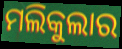
ମଲିକୁଲାର